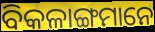
ବିକଳାଙ୍ଗମାନେ